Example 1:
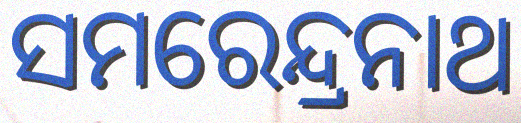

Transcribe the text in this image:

ସମରେନ୍ଦ୍ରନାଥ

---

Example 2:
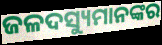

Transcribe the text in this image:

ଜଳଦସ୍ୟୁମାନଙ୍କର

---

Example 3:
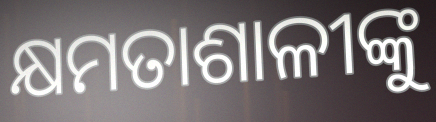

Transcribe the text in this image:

କ୍ଷମତାଶାଳୀଙ୍କୁ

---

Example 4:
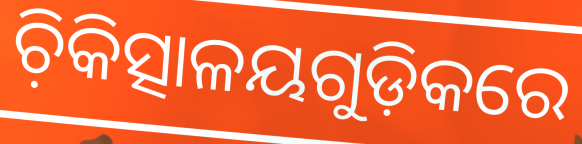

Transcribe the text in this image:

ଚ଼ିକିତ୍ସାଳୟଗୁଡ଼ିକରେ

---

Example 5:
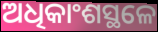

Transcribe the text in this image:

ଅଧିକାଂଶସ୍ଥଳେ